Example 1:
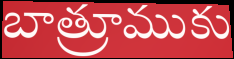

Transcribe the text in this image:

బాత్రూముకు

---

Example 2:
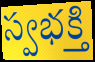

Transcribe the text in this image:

స్వభక్తి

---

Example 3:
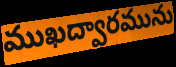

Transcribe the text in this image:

ముఖద్వారమును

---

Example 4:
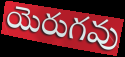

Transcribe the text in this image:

యెరుగవు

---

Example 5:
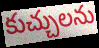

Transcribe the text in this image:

కుచ్చులను